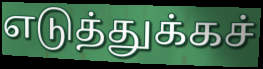
எடுத்துக்கச்